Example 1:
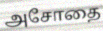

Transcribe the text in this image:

அசோதை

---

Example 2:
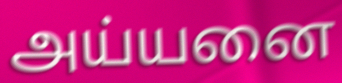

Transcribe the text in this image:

அய்யனை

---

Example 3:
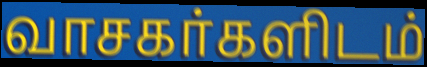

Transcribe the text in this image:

வாசகர்களிடம்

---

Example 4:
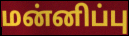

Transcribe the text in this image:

மன்னிப்பு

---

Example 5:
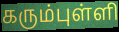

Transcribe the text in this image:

கரும்புள்ளி